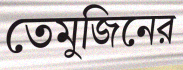
তেমুজিনের